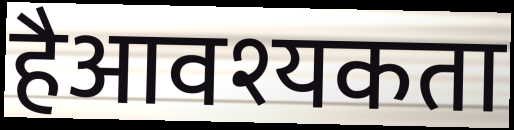
हैआवश्यकता